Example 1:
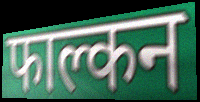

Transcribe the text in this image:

फाल्कन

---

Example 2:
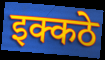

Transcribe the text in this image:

इक्कठे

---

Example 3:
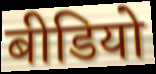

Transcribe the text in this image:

बीडियो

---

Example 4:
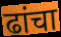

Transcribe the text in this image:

ढांचा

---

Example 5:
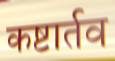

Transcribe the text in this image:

कष्टार्तव